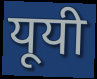
यूयी